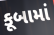
કૂબામાં